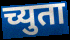
च्युता